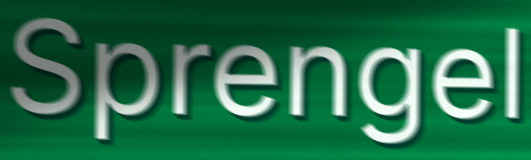
Sprengel